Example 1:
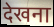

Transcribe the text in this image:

देखना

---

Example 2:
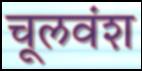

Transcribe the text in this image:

चूलवंश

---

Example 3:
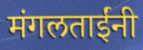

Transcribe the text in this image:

मंगलताईंनी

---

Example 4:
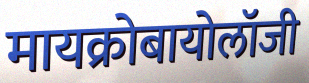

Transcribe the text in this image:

मायक्रोबायोलॉजी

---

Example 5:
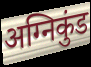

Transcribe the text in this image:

अग्निकुंड